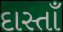
દાસ્તાઁ